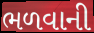
ભળવાની